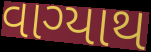
વાગ્યાથ